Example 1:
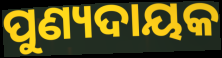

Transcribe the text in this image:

ପୁଣ୍ୟଦାୟକ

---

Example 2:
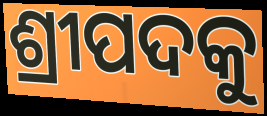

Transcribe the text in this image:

ଶ୍ରୀପଦକୁ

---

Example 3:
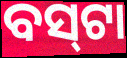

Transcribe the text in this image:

ବସ୍‍ଟା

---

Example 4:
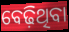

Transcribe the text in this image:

ବେଢ଼ିଥିବା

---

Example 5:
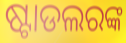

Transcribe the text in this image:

ଷ୍ଟାଡଲରଙ୍କ